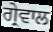
ਗ੍ਰੇਵਾਲ